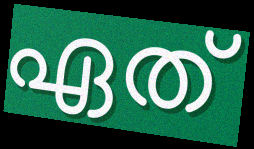
ഏത്